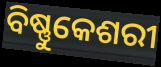
ବିଷ୍ଣୁକେଶରୀ